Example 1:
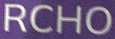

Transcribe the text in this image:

RCHO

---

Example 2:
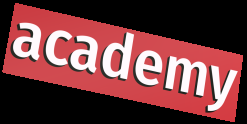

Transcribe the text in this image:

academy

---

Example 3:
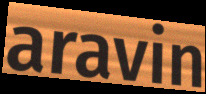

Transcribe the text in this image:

aravin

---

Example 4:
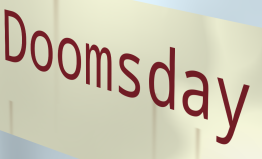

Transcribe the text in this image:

Doomsday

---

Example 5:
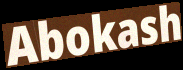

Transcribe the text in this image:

Abokash